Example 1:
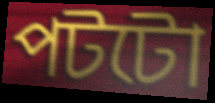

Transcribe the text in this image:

পটটো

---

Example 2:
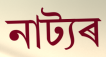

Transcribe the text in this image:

নাট্যৰ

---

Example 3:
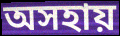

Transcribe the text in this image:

অসহায়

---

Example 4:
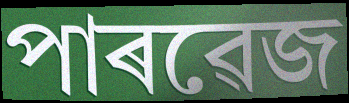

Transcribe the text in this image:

পাৰৱেজ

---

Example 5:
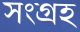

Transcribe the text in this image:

সংগ্ৰহ